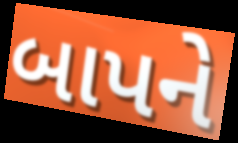
બાપને